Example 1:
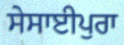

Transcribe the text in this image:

ਸੇਸਾਈਪੁਰਾ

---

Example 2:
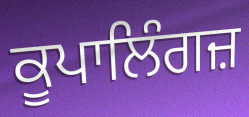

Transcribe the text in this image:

ਕੂਪਾਲਿੰਗਜ਼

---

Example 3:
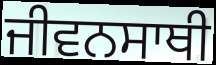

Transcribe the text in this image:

ਜੀਵਨਸਾਥੀ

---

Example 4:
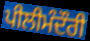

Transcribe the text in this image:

ਪੀਲੀਮੰਦੌਰੀ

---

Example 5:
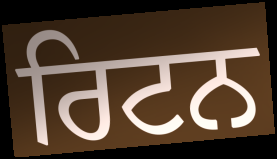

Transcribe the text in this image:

ਰਿਟਨ